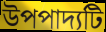
উপপাদ্যটি